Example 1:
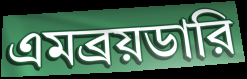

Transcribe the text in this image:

এমব্রয়ডারি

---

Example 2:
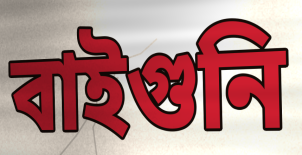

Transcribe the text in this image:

বাইগুনি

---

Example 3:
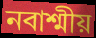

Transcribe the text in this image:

নবাশ্মীয়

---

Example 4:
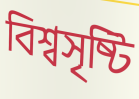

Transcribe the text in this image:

বিশ্বসৃষ্টি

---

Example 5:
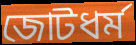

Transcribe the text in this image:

জোটধর্ম